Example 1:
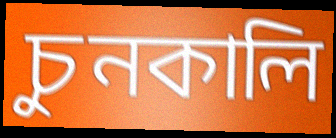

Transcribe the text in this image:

চুনকালি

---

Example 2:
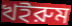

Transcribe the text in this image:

খইরুম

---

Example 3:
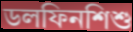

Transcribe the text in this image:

ডলফিনশিশু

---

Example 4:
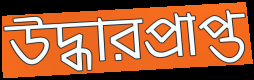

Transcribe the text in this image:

উদ্ধারপ্রাপ্ত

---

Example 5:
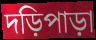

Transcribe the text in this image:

দড়িপাড়া